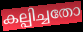
കല്പിച്ചതോ